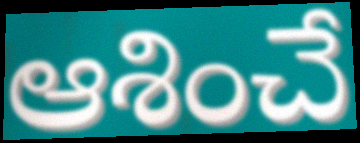
ఆశించే